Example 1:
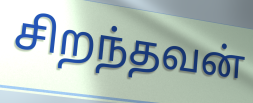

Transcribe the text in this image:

சிறந்தவன்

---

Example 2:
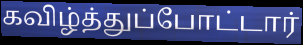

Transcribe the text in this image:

கவிழ்த்துப்போட்டார்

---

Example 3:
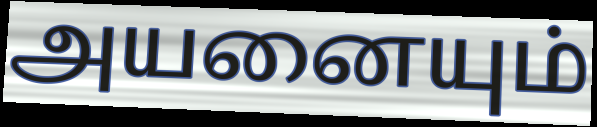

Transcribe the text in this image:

அயனையும்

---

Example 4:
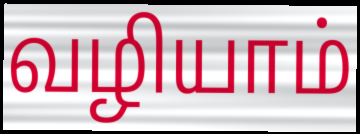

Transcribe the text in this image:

வழியாம்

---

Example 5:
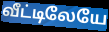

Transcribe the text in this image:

வீட்டிலேயே